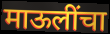
माऊलींचा